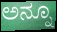
ಅನ್ನೂ